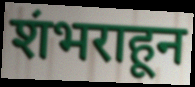
शंभराहून